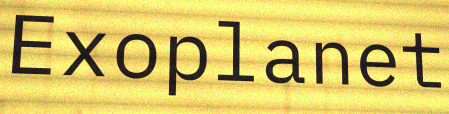
Exoplanet